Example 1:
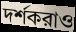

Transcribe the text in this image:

দর্শকরাও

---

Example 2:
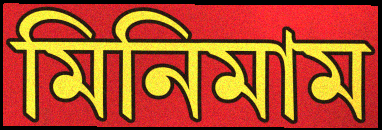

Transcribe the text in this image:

মিনিমাম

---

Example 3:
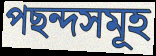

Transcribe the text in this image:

পছন্দসমূহ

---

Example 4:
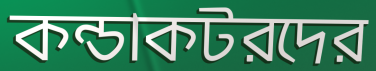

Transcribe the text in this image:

কন্ডাকটরদের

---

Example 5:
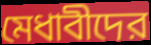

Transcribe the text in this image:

মেধাবীদের